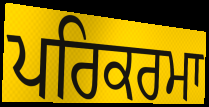
ਪਰਿਕਰਮਾ